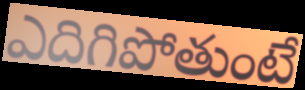
ఎదిగిపోతుంటే